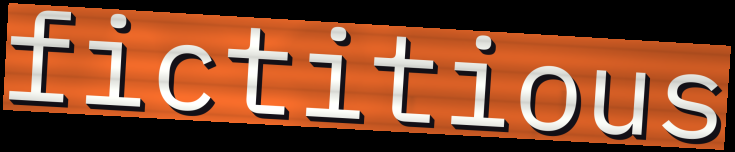
fictitious